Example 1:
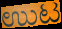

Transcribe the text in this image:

ಉುಟ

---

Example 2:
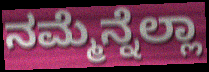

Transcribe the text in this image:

ನಮ್ಮೆನ್ನೆಲ್ಲಾ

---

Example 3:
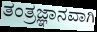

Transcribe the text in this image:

ತಂತ್ರಜ್ಞಾನವಾಗಿ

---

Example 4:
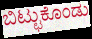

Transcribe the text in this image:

ಬಿಟ್ಟುಕೊಂಡು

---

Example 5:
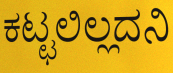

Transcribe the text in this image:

ಕಟ್ಟಲಿಲ್ಲದನಿ